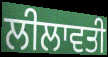
ਲੀਲਾਵਤੀ